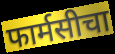
फार्मसीचा